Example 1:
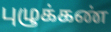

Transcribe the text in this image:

புழுக்கண்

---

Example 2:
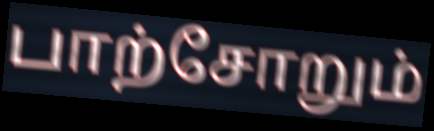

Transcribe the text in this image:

பாற்சோறும்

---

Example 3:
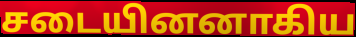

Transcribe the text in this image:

சடையினனாகிய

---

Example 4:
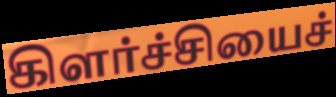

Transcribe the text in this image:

கிளர்ச்சியைச்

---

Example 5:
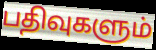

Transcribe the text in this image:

பதிவுகளும்